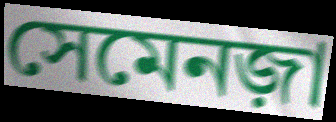
সেমেনজ়া